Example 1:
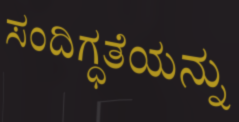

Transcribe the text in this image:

ಸಂದಿಗ್ಧತೆಯನ್ನು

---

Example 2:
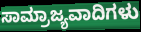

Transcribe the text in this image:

ಸಾಮ್ರಾಜ್ಯವಾದಿಗಳು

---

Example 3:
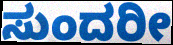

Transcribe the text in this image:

ಸುಂದರೀ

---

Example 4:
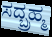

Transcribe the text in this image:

ಸದ್ಬ್ರಹ್ಮ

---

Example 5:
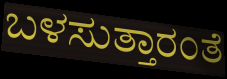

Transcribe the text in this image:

ಬಳಸುತ್ತಾರಂತೆ